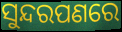
ସୁନ୍ଦରପଣରେ